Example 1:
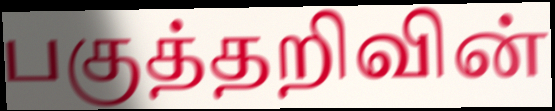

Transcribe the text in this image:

பகுத்தறிவின்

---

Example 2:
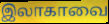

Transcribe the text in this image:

இலாகாவை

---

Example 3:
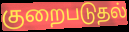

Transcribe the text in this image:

குறைபடுதல்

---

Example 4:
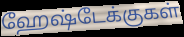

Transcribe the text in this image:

ஹேஷ்டேக்குகள்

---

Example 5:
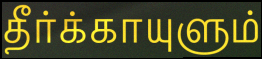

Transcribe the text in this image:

தீர்க்காயுளும்